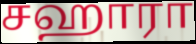
சஹாரா